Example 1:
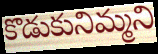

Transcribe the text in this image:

కొడుకునిమ్మని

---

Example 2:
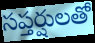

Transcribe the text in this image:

సప్తర్షులతో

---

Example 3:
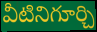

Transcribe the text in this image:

వీటినిగూర్చి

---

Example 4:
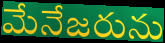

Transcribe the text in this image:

మేనేజరును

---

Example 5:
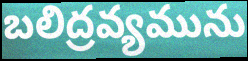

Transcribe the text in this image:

బలిద్రవ్యమును